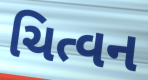
ચિત્વન